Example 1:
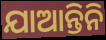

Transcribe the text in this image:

ଯାଆନ୍ତିନି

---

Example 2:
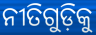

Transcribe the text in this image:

ନୀତିଗୁଡ଼ିକୁ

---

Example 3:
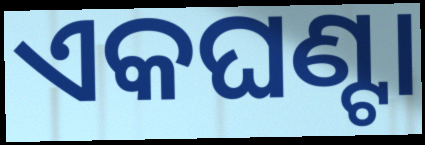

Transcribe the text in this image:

ଏକଘଣ୍ଟା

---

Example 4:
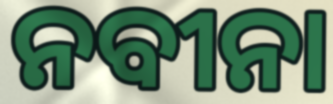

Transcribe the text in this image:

ନବୀନା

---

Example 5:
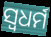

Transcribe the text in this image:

ସ୍ଵଧର୍ମ